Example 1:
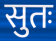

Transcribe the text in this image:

सुतः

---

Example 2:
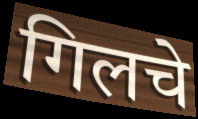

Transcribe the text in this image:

गिलचे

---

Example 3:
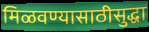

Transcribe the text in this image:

मिळवण्यासाठीसुद्धा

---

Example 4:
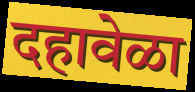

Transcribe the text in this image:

दहावेळा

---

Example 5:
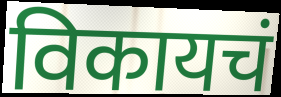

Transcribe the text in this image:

विकायचं